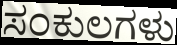
ಸಂಕುಲಗಳು